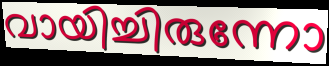
വായിച്ചിരുന്നോ